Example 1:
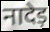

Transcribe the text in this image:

नादेड़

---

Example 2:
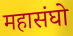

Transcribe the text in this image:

महासंघो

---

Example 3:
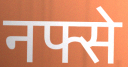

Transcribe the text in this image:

नफ्से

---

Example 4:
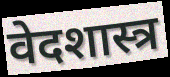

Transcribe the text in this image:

वेदशास्त्र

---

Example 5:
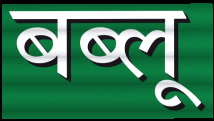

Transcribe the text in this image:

बब्लू